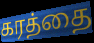
கரத்தை